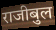
राजीबुल